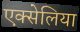
एक्सेलिया